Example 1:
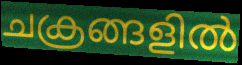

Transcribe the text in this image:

ചക്രങ്ങളിൽ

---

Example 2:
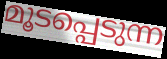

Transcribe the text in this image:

മൂടപ്പെടുന്ന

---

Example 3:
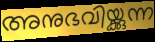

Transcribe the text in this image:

അനുഭവിയ്ക്കുന്ന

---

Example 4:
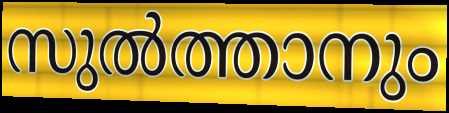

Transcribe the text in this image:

സുൽത്താനും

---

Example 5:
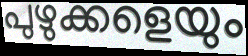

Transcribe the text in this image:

പുഴുക്കളെയും